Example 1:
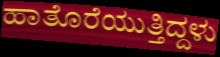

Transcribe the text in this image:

ಹಾತೊರೆಯುತ್ತಿದ್ದಳು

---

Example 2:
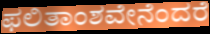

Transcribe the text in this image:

ಫಲಿತಾಂಶವೇನೆಂದರೆ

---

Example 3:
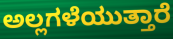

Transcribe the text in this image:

ಅಲ್ಲಗಳೆಯುತ್ತಾರೆ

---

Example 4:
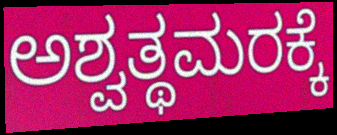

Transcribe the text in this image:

ಅಶ್ವತ್ಥಮರಕ್ಕೆ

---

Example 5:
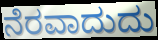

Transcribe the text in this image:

ನೆರವಾದುದು